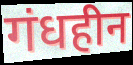
गंधहीन